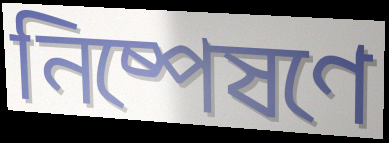
নিষ্পেষণে